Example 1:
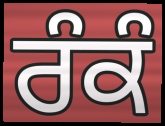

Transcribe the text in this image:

ਰੰਕੰ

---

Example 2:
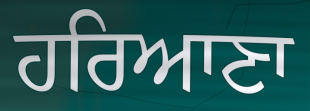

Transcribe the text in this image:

ਹਰਿਆਣਾ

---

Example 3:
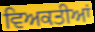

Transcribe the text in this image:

ਵਿਅਕਤੀਆਂ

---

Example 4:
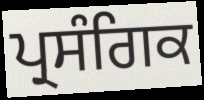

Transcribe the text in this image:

ਪ੍ਰਸੰਗਿਕ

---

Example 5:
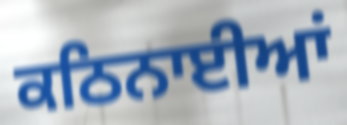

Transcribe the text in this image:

ਕਠਿਨਾਈਆਂ